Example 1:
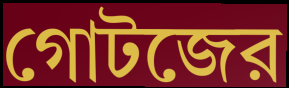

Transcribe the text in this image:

গোটজের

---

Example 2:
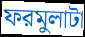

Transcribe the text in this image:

ফরমুলাটা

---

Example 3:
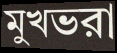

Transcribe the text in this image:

মুখভরা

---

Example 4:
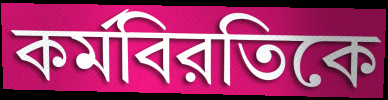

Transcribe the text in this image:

কর্মবিরতিকে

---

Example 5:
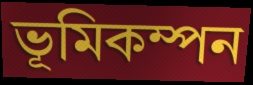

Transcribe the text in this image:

ভূমিকম্পন